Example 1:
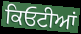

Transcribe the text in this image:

ਕਿਓਟੀਆਂ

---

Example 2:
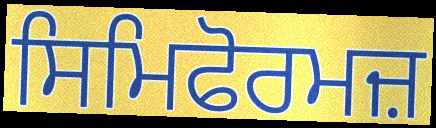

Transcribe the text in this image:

ਸਿਮਿਫੋਰਮਜ਼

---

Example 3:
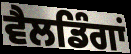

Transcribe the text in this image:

ਵੈਲਡਿੰਗਾਂ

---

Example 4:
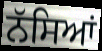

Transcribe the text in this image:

ਨੱਸਿਆਂ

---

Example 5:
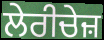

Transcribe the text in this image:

ਲੇਰੀਚੇਜ਼